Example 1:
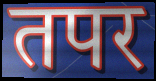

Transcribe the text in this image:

तपर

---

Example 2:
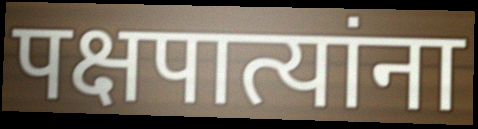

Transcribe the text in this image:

पक्षपात्यांना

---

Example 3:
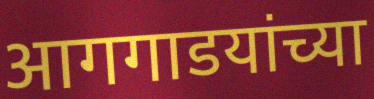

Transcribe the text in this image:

आगगाडयांच्या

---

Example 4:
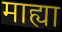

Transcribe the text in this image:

माह्या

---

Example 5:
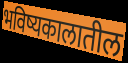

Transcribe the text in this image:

भविष्यकालातील